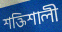
শক্তিশালী